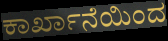
ಕಾರ್ಖಾನೆಯಿಂದ